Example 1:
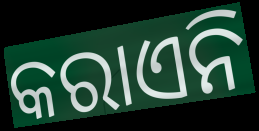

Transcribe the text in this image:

କରାଏନି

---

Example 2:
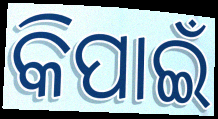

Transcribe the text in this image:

କିପାଇଁ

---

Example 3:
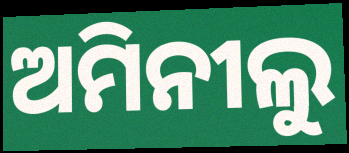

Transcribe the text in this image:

ଅମିନୀଲୁ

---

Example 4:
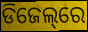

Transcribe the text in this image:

ଡିଜେଲ୍‌ରେ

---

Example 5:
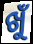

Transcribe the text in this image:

ଖୁଁ